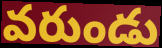
వరుండు